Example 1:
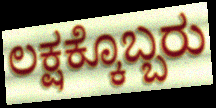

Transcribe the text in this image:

ಲಕ್ಷಕ್ಕೊಬ್ಬರು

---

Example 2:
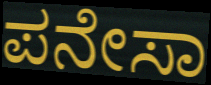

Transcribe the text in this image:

ಪನೇಸಾ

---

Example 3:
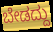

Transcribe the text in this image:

ಬೇಡದ್ದು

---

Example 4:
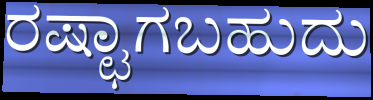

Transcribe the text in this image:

ರಷ್ಟಾಗಬಹುದು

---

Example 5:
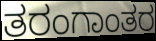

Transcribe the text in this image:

ತರಂಗಾಂತರ